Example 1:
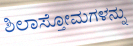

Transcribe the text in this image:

ಶಿಲಾಸ್ತೋಮಗಳನ್ನು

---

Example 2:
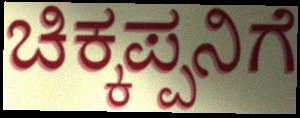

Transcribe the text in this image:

ಚಿಕ್ಕಪ್ಪನಿಗೆ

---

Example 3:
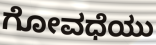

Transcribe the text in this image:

ಗೋವಧೆಯು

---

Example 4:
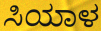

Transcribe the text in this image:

ಸಿಯಾಳ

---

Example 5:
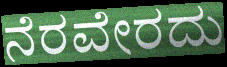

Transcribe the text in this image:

ನೆರವೇರದು